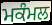
ਮਕੰਮਲ